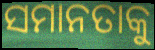
ସମାନତାକୁ